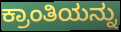
ಕ್ರಾಂತಿಯನ್ನು